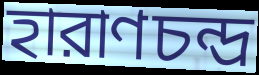
হারাণচন্দ্র